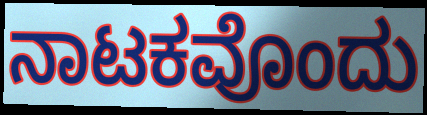
ನಾಟಕವೊಂದು